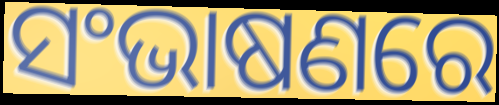
ସଂଭାଷଣରେ